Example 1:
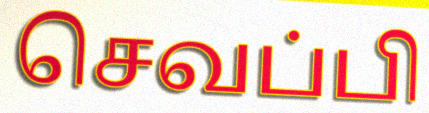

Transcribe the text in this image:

செவப்பி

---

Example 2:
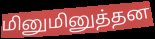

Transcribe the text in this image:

மினுமினுத்தன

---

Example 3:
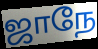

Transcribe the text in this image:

ஜாநே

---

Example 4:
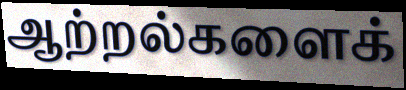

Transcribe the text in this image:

ஆற்றல்களைக்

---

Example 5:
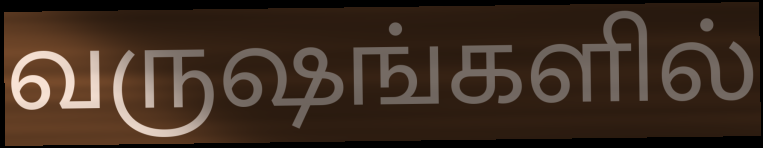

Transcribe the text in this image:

வருஷங்களில்